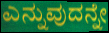
ಎನ್ನುವುದನ್ನೇ